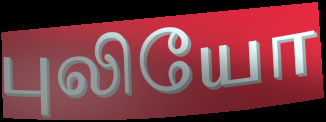
புலியோ